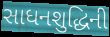
સાધનશુદ્ધિની